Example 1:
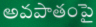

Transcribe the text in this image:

అవపాతంపై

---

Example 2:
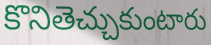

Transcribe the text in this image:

కొనితెచ్చుకుంటారు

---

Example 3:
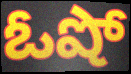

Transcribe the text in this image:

ఓషో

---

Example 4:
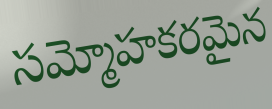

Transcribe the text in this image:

సమ్మోహకరమైన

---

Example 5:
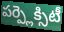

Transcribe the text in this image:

పర్ప్లెక్సిటీ